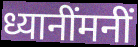
ध्यानींमनीं